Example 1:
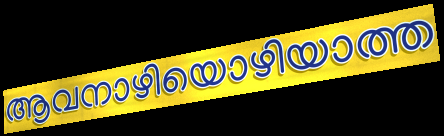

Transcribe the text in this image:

ആവനാഴിയൊഴിയാത്ത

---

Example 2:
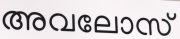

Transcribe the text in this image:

അവലോസ്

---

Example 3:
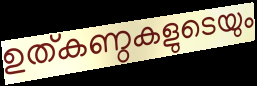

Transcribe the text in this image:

ഉത്കണ്ഠകളുടെയും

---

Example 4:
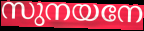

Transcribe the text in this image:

സുനയനേ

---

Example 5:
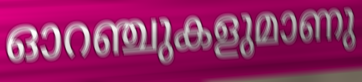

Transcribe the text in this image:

ഓറഞ്ചുകളുമാണു